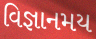
વિજ્ઞાનમય